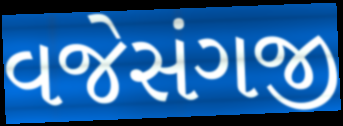
વજેસંગજી